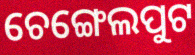
ଚେଙ୍ଗେଲପୁଟ